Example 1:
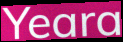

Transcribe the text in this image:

Yeara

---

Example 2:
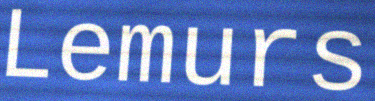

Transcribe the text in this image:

Lemurs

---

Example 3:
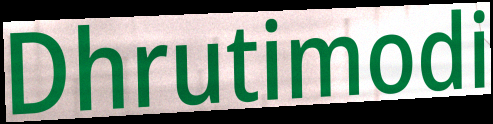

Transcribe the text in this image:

Dhrutimodi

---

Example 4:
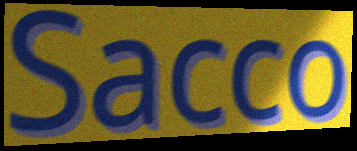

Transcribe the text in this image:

Sacco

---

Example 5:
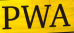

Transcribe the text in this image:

PWA